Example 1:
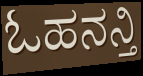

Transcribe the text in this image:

ಓಹನನ್ತಿ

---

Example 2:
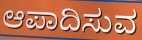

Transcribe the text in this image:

ಆಪಾದಿಸುವ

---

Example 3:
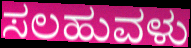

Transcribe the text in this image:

ಸಲಹುವಳು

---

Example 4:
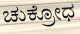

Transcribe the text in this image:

ಚುಕ್ರೋಧ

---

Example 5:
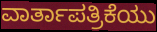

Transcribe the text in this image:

ವಾರ್ತಾಪತ್ರಿಕೆಯು